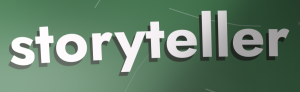
storyteller